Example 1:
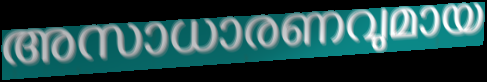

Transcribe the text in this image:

അസാധാരണവുമായ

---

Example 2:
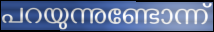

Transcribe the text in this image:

പറയുന്നുണ്ടോന്ന്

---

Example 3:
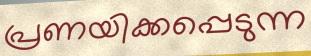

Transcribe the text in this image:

പ്രണയിക്കപ്പെടുന്ന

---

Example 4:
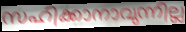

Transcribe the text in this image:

സഹിക്കാനാവുന്നില്ല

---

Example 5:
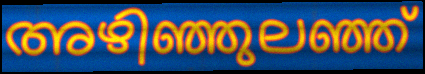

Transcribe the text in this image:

അഴിഞ്ഞുലഞ്ഞ്